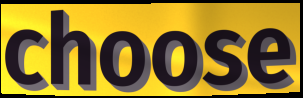
choose